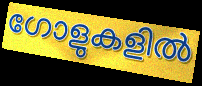
ഗോളുകളിൽ